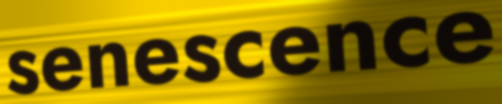
senescence